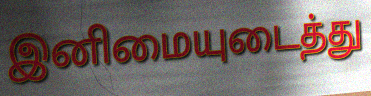
இனிமையுடைத்து